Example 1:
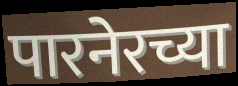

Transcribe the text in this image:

पारनेरच्या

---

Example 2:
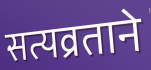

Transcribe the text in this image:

सत्यव्रताने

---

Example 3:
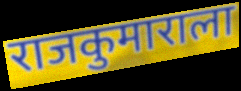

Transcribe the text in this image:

राजकुमाराला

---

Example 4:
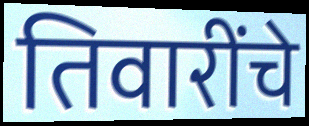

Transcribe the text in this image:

तिवारींचे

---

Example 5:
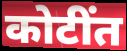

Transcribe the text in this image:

कोटींत